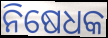
ନିଷେଧକ